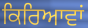
ਕਿਰਿਆਵਾਂ